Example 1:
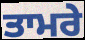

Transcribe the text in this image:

ਤਾਮਰੇ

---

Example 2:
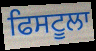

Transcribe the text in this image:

ਫਿਸਟੂਲਾ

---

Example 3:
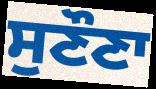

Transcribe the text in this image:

ਸੁਣੌਣਾ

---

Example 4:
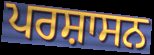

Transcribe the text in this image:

ਪਰਸ਼ਾਸਨ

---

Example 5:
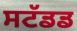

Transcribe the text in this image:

ਸਟੱਡਡ